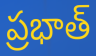
ప్రభాత్